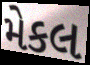
મેકલ